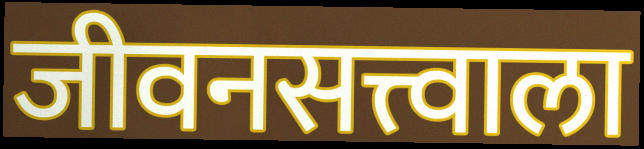
जीवनसत्त्वाला